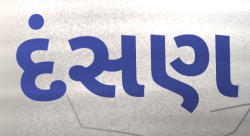
દંસણ